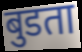
बुडता